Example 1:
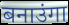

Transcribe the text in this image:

बनाउंगा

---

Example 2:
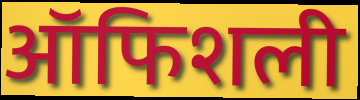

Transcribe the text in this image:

ऑफिशली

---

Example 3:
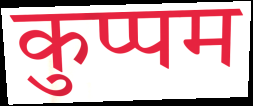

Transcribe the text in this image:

कुप्पम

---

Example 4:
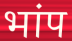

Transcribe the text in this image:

भांप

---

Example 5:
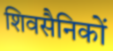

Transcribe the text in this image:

शिवसैनिकों